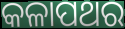
କଳାପଥର